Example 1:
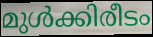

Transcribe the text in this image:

മുൾക്കിരീടം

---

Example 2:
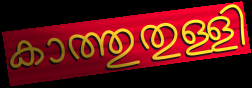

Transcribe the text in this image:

കാത്തുതുള്ളി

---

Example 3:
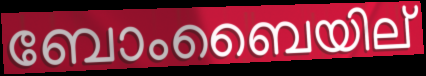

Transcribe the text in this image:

ബോംബൈയില്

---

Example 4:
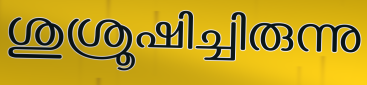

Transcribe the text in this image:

ശുശ്രൂഷിച്ചിരുന്നു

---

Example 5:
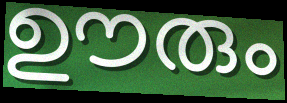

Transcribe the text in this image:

ഊരും